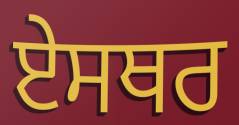
ਏਸਥਰ